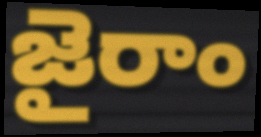
జైరాం